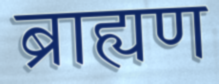
ब्राह्यण